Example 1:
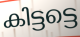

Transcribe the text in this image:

കിട്ടട്ടെ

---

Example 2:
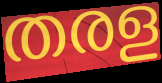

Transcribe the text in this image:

തരള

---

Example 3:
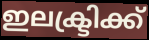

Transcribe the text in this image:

ഇലക്ട്രിക്ക്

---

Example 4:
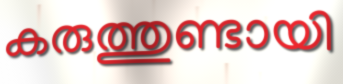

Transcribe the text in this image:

കരുത്തുണ്ടായി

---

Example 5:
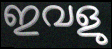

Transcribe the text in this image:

ഇവളു